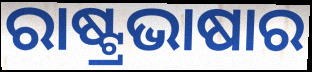
ରାଷ୍ଟ୍ରଭାଷାର